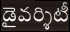
డైవర్శిటీ